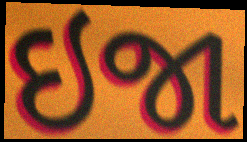
ઇજા